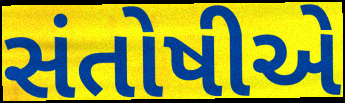
સંતોષીએ